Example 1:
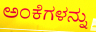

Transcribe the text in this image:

ಅಂಕೆಗಳನ್ನು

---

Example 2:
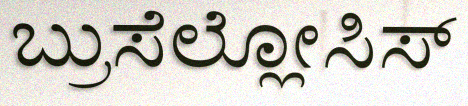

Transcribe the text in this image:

ಬ್ರುಸೆಲ್ಲೋಸಿಸ್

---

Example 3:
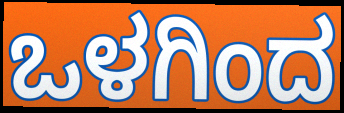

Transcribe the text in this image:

ಒಳಗಿಂದ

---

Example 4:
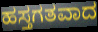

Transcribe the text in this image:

ಹಸ್ತಗತವಾದ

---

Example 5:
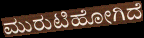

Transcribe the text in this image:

ಮುರುಟಿಹೋಗಿದೆ